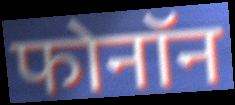
फोनॉन